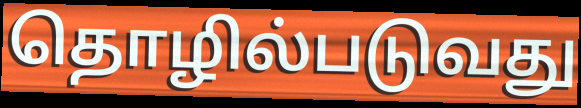
தொழில்படுவது